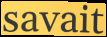
savait